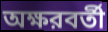
অক্ষরবর্তী